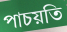
পাচয়তি